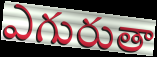
ఎగురుతా